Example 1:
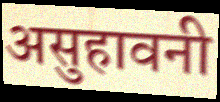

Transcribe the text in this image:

असुहावनी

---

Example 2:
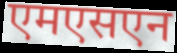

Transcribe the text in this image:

एमएसएन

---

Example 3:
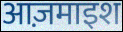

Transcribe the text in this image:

आज़माइश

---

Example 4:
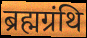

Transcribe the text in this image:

ब्रह्मग्रंथि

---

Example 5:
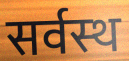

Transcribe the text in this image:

सर्वस्थ